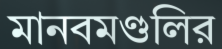
মানবমণ্ডলির